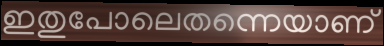
ഇതുപോലെതന്നെയാണ്